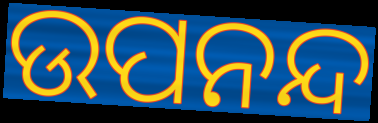
ଉପନନ୍ଦ